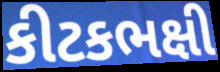
કીટકભક્ષી